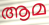
ആമ